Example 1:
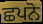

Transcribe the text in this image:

ਛਪਨੋ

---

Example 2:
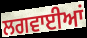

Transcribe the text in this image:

ਲਗਵਾਈਆਂ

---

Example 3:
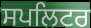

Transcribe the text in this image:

ਸਪਲਿਟਰ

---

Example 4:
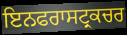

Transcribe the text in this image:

ਇਨਫਰਾਸਟ੍ਰਕਚਰ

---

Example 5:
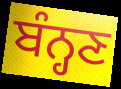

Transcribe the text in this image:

ਬੰਨ੍ਹਣ